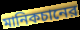
মানিকচানের